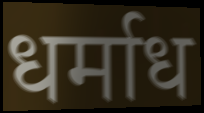
धर्माध